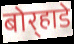
बोर्‍हाडे